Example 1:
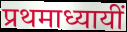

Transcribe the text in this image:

प्रथमाध्यायीं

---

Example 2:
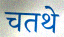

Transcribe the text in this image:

चतथे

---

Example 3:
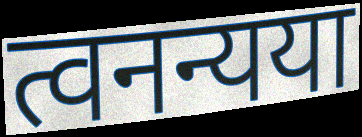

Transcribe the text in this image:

त्वनन्यया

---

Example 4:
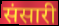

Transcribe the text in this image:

संसारी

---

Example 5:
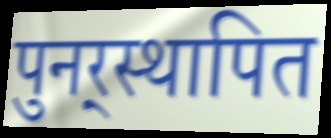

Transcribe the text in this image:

पुनर्स्थापित